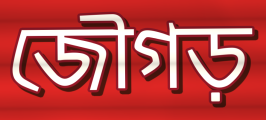
জৌগড়